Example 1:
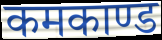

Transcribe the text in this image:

कमकाण्ड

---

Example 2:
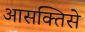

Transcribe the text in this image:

आसक्तिसे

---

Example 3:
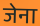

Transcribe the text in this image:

जेना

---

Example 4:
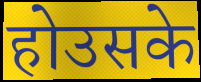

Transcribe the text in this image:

होउसके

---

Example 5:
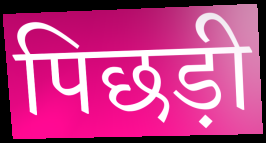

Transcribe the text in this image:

पिछड़ी